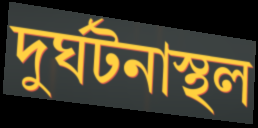
দুর্ঘটনাস্থল